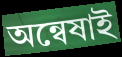
অন্বেষাই